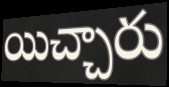
యిచ్చారు